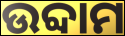
ଉବ୍ଦାମ